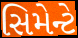
સિમેન્ટે